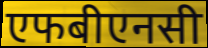
एफबीएनसी